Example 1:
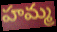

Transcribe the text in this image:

హమ్మ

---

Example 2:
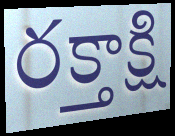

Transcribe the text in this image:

రక్తాక్షి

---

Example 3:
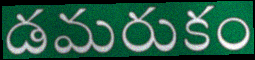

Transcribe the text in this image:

డమరుకం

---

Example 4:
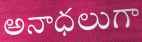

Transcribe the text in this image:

అనాధలుగా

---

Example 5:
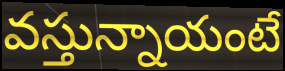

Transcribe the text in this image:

వస్తున్నాయంటే